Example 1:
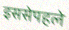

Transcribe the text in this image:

इससेपहले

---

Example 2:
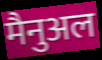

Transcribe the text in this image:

मैनुअल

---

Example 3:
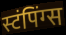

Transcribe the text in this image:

स्टंपिंग्स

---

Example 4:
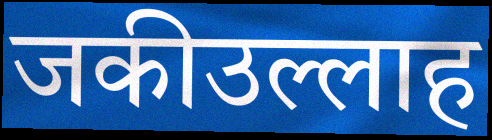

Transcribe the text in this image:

जकीउल्लाह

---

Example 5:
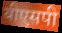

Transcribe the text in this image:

बीएसपी